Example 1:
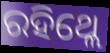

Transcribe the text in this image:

ରହିଥ୍ଲେ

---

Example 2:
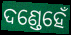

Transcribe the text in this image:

ଦଣ୍ଡେହେଁ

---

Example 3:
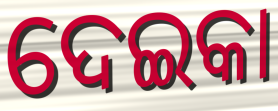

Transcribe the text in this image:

ଦେଇକା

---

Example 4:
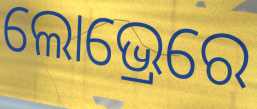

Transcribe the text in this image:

ଲୋଭ୍ରେରେ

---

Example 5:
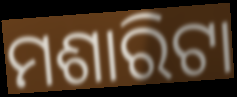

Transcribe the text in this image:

ମଶାରିଟା